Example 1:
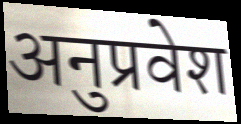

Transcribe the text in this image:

अनुप्रवेश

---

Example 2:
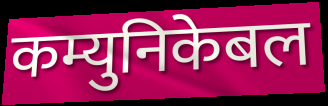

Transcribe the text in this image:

कम्युनिकेबल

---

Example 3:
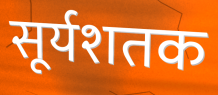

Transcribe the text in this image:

सूर्यशतक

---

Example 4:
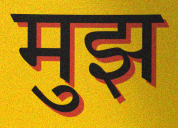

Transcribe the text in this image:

मुझ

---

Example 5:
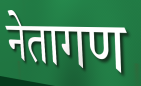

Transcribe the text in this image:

नेतागण